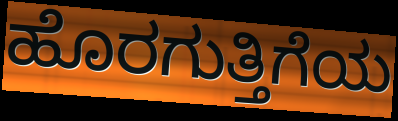
ಹೊರಗುತ್ತಿಗೆಯ